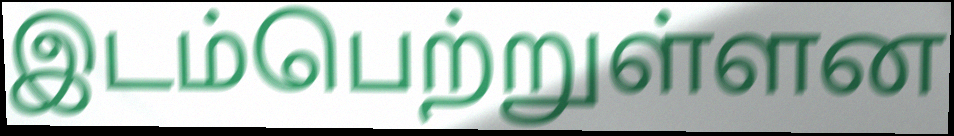
இடம்பெற்றுள்ளன